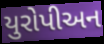
યુરોપીઅન